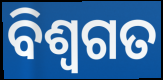
ବିଶ୍ଵଗତ